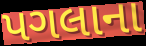
પગલાના